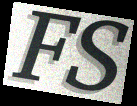
FS